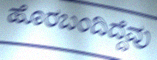
ಹೊರಬಂದಿದ್ದೆವು